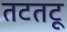
तटतटू